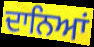
ਦਾਨਿਆਂ